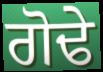
ਗੋਢੇ